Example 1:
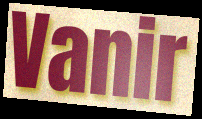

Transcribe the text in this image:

Vanir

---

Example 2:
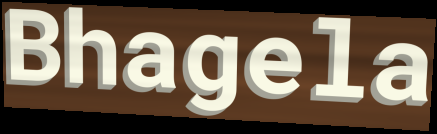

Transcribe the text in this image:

Bhagela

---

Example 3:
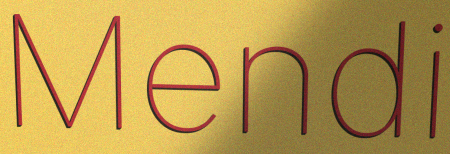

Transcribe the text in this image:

Mendi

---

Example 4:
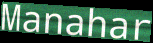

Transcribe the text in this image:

Manahar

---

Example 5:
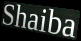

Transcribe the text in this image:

Shaiba